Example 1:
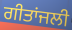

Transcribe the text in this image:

ਗੀਤਾਂਜਲੀ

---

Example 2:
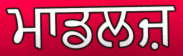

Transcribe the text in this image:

ਮਾਡਲਜ਼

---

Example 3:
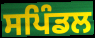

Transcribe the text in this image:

ਸਪਿੰਡਲ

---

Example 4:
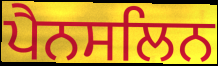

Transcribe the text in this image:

ਪੈਨਸਲਿਨ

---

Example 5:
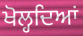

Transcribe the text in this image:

ਖੋਲ੍ਹਦਿਆਂ